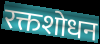
रक्तशोधन